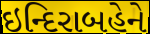
ઇન્દિરાબહેને